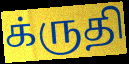
க்ருதி